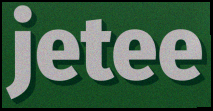
jetee